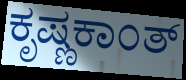
ಕೃಷ್ಣಕಾಂತ್